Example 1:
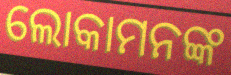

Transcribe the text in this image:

ଲୋକାମନଙ୍କ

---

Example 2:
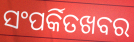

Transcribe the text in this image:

ସଂପର୍କିତଖବର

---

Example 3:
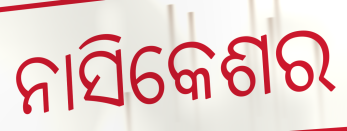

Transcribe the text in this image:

ନାସିକେଶର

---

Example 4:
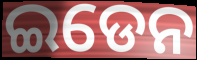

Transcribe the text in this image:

ଇଡେନ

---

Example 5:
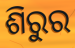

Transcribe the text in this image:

ଶିରୁର